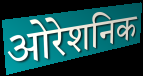
ओरेशनिक